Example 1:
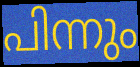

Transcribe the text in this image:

പിന്നും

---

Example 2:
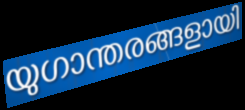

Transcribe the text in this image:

യുഗാന്തരങ്ങളായി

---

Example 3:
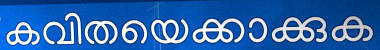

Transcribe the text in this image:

കവിതയെക്കാക്കുക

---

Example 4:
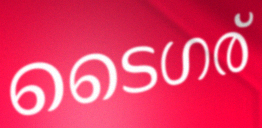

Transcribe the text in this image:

ടൈഗര്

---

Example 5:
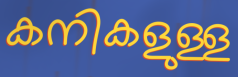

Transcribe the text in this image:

കനികളുള്ള